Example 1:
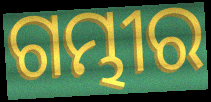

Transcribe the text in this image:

ଗମ୍ଭୀର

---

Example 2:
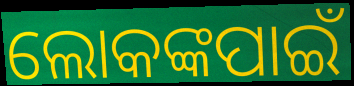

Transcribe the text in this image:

ଲୋକଙ୍କପାଇଁ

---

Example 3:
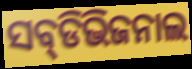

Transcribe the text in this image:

ସବ୍‌ଡିଭିଜନାଲ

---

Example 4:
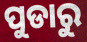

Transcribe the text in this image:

ପୁଡାରୁ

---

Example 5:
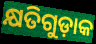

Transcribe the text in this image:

କ୍ଷତିଗୁଡ଼ାକ